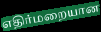
எதிர்மறையான